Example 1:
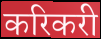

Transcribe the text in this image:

करिकरी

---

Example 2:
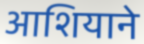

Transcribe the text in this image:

आशियाने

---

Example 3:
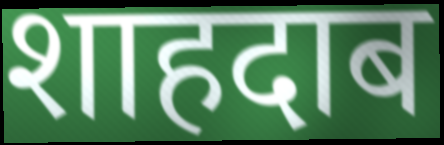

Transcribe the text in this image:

शाहदाब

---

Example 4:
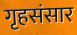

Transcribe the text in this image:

गृहसंसार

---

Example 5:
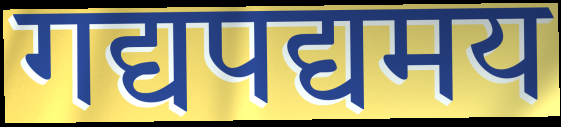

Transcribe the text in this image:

गद्यपद्यमय